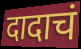
दादाचं